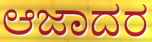
ಆಜಾದರ